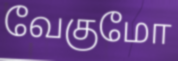
வேகுமோ